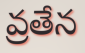
వ్రతేన